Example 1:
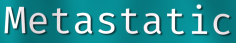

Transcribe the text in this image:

Metastatic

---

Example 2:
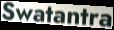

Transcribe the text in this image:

Swatantra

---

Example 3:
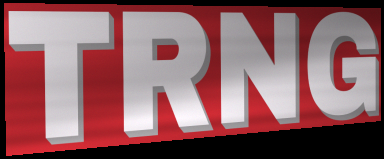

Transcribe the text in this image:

TRNG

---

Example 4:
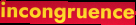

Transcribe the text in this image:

incongruence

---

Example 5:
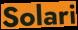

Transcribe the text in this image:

Solari